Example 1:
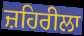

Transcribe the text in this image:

ਜ਼ਹਿਰੀਲਾ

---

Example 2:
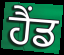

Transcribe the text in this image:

ਹੈਂਡ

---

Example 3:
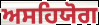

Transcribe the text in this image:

ਅਸਹਿਯੋਗ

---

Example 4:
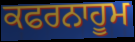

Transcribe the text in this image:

ਕਫਰਨਾਹੂਮ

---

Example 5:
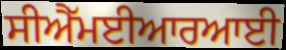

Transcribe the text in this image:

ਸੀਐੱਮਈਆਰਆਈ